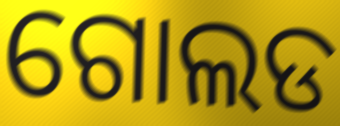
ଗୋଲଡ